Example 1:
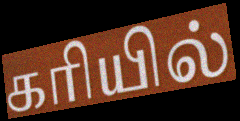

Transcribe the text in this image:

கரியில்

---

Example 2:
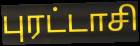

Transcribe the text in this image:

புரட்டாசி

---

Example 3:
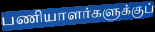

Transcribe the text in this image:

பணியாளர்களுக்குப்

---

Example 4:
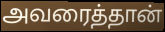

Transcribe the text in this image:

அவரைத்தான்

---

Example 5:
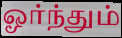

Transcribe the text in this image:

ஓர்ந்தும்